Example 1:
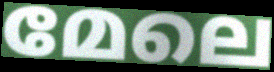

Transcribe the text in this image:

മേലെ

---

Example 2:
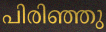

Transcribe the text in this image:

പിരിഞ്ഞു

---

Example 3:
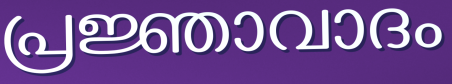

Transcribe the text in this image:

പ്രജ്ഞാവാദം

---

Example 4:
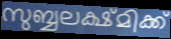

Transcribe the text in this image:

സുബ്ബലക്ഷ്മിക്ക്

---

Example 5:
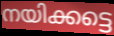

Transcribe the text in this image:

നയിക്കട്ടെ